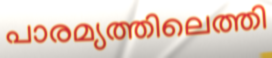
പാരമ്യത്തിലെത്തി